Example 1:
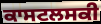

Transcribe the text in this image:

ਕਾਸਟਲਸਕੀ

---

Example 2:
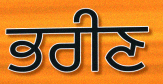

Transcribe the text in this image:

ਭਰੀਣ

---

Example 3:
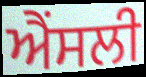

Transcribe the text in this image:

ਐਂਸਲੀ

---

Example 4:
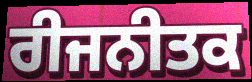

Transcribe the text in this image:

ਰੀਜਨੀਤਕ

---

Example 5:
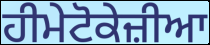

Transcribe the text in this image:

ਹੀਮੇਟੋਕੇਜ਼ੀਆ